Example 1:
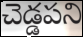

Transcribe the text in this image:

చెడ్డపని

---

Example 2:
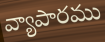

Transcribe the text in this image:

వ్యాపారము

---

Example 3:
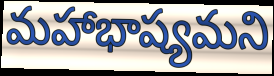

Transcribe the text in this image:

మహాభాష్యమని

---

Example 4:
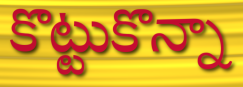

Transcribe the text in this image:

కొట్టుకొన్నా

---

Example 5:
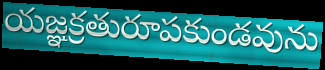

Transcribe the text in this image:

యజ్ఞక్రతురూపకుండవును